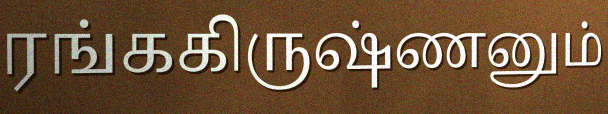
ரங்ககிருஷ்ணனும்